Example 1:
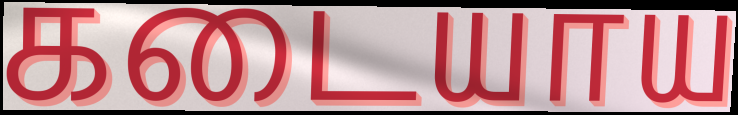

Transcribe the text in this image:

கடையாய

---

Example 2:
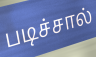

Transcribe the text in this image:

படிச்சால்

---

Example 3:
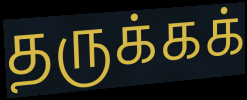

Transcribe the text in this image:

தருக்கக்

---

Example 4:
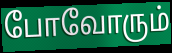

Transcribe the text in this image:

போவோரும்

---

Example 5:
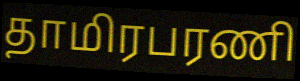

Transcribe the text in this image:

தாமிரபரணி